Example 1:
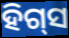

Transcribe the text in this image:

ହିଗ୍‌ସ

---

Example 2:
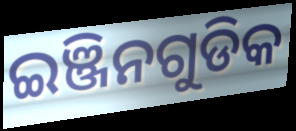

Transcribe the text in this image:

ଇଞ୍ଜିନଗୁଡିକ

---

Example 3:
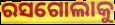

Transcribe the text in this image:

ରସଗୋଲାକୁ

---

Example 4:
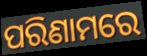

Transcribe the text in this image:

ପରିଣାମରେ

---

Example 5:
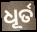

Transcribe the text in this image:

ଧୂର୍ତ